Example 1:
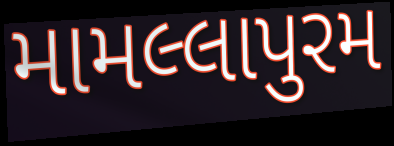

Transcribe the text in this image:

મામલ્લાપુરમ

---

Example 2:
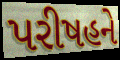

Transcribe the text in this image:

પરીષહને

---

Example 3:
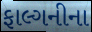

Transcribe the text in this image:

ફાલ્ગનીના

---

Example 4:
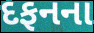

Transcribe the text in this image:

દફનના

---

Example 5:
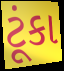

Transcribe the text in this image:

ટૂંકા